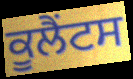
ਕੂਲੈਂਟਸ